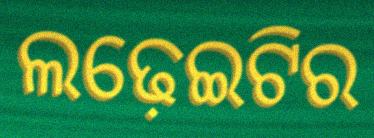
ଲଢ଼େଇଟିର